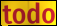
todo